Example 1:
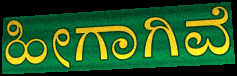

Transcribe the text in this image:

ಹೀಗಾಗಿವೆ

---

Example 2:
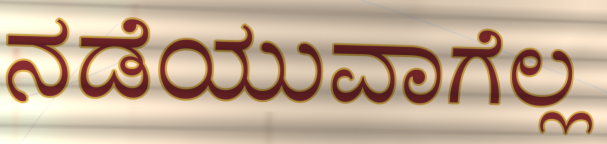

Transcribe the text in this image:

ನಡೆಯುವಾಗೆಲ್ಲ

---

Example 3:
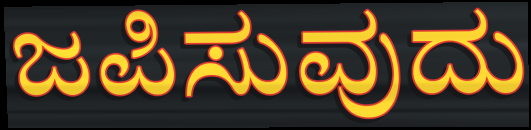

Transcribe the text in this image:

ಜಪಿಸುವುದು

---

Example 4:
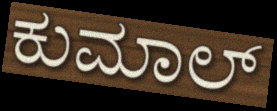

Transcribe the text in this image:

ಕುಮಾಲ್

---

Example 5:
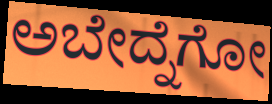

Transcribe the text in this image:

ಅಬೇದ್ನೆಗೋ